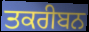
ਤਕਰੀਬਨ